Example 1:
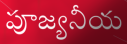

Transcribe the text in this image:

పూజ్యనీయ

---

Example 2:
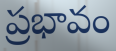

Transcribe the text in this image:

ప్రభావం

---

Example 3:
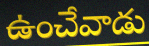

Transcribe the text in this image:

ఉంచేవాడు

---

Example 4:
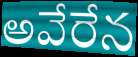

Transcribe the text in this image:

అవేరేన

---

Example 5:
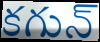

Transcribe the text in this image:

కగున్